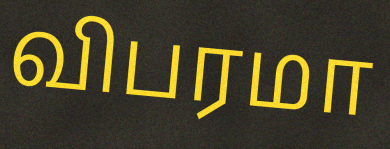
விபரமா